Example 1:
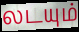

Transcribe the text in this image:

லடயும்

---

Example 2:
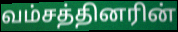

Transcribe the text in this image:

வம்சத்தினரின்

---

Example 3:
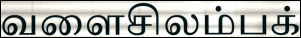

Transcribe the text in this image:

வளைசிலம்பக்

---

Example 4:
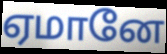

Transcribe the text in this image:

ஏமானே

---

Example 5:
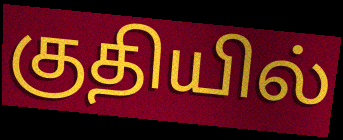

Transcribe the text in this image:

குதியில்